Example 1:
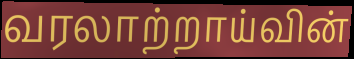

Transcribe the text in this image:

வரலாற்றாய்வின்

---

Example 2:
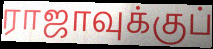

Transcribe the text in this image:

ராஜாவுக்குப்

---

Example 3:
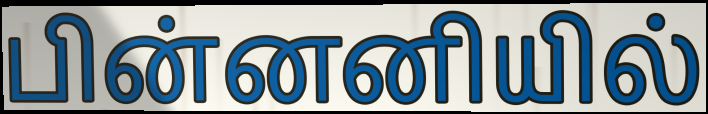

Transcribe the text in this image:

பின்னனியில்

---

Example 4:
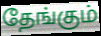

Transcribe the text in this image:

தேங்கும்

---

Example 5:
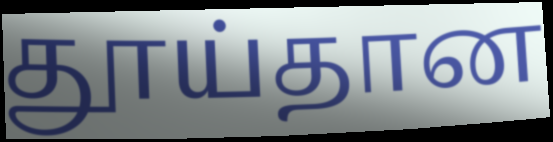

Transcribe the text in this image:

தூய்தான